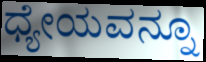
ಧ್ಯೇಯವನ್ನೂ